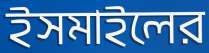
ইসমাইলের